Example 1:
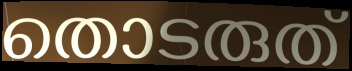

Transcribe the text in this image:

തൊടരുത്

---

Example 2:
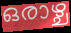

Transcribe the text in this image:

ഒരാഴ്ച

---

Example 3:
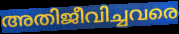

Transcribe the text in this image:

അതിജീവിച്ചവരെ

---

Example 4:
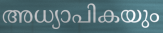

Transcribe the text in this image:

അധ്യാപികയും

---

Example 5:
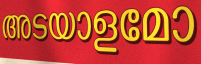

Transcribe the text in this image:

അടയാളമോ